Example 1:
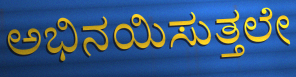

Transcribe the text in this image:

ಅಭಿನಯಿಸುತ್ತಲೇ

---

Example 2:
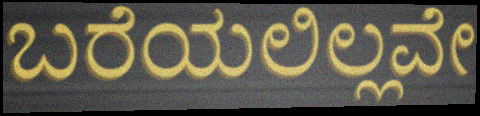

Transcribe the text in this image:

ಬರೆಯಲಿಲ್ಲವೇ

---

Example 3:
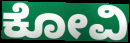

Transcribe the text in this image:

ಕೋವಿ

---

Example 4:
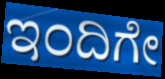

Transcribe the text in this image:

ಇಂದಿಗೇ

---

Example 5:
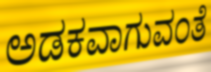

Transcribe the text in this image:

ಅಡಕವಾಗುವಂತೆ